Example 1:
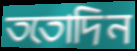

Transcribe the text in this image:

ততোদিন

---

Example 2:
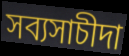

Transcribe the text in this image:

সব্যসাচীদা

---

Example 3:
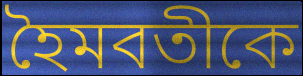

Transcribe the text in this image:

হৈমবতীকে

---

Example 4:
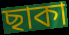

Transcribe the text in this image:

ছাকা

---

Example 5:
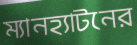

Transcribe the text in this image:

ম্যানহ্যাটনের